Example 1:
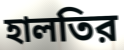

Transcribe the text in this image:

হালতির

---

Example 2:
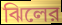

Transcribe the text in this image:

ঝিলের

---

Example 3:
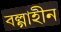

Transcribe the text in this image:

বল্গাহীন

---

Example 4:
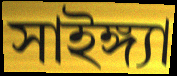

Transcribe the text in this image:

সাইঙ্গ্যা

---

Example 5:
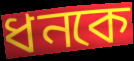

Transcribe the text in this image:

ধনকে